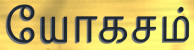
யோகசம்